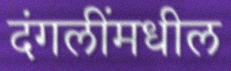
दंगलींमधील